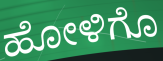
ಹೋಳಿಗೊ